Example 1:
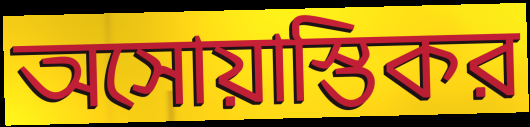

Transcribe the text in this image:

অসোয়াস্তিকর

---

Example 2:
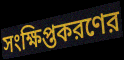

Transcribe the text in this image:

সংক্ষিপ্তকরণের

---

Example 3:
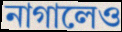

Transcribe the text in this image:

নাগালেও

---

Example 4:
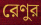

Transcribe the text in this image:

রেণুর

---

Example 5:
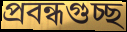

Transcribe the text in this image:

প্রবন্ধগুচ্ছ